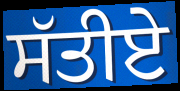
ਸੱਤੀਏ